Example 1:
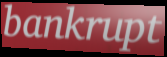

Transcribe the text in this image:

bankrupt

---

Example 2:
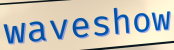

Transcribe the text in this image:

waveshow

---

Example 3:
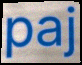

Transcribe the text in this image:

paj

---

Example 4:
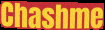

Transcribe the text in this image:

Chashme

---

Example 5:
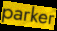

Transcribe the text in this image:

parker